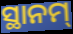
ସ୍ଥାନମ୍